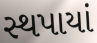
સ્થપાયાં